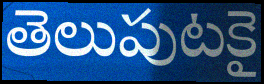
తెలుపుటకై